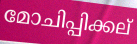
മോചിപ്പിക്കല്